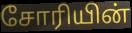
சோரியின்